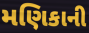
મણિકાની